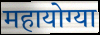
महायोग्या